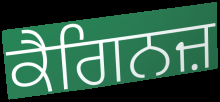
ਕੈਗਿਨਜ਼